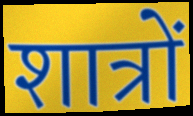
शात्रों